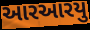
આરઆરયુ